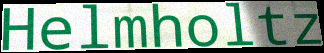
Helmholtz